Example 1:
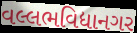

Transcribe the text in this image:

વલ્લભવિદ્યાનગર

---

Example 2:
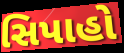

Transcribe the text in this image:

સિપાહો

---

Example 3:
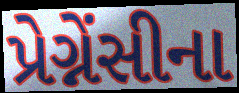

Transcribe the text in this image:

પ્રેગ્નેંસીના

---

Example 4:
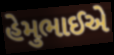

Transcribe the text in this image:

હેમુભાઈએ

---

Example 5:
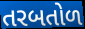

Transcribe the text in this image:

તરબતોળ